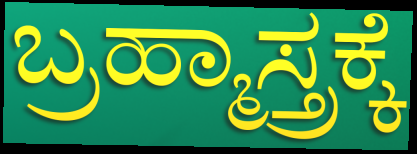
ಬ್ರಹ್ಮಾಸ್ತ್ರಕ್ಕೆ